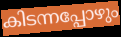
കിടന്നപ്പോഴും